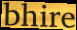
bhire